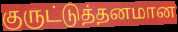
குருட்டுத்தனமான